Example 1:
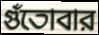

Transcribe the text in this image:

গুঁতোবার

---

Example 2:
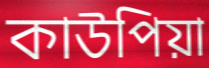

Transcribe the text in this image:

কাউপিয়া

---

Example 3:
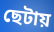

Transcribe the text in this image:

ছেটায়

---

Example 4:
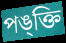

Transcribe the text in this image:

পঙ্‌ক্তি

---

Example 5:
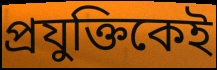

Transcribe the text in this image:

প্রযুক্তিকেই